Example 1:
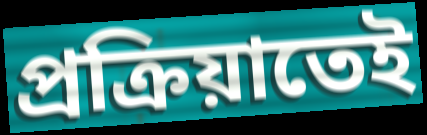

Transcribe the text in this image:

প্রক্রিয়াতেই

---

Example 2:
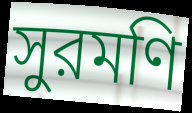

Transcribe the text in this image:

সুরমণি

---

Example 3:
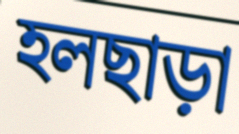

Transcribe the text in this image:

হলছাড়া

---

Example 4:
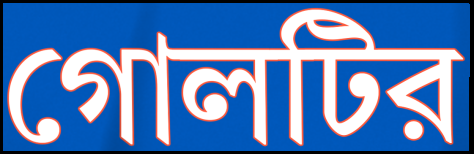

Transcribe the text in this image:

গোলটির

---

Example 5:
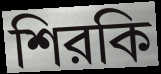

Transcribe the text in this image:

শিরকি